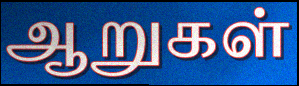
ஆறுகள்